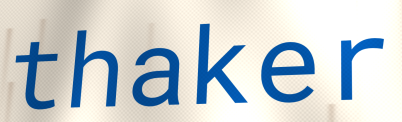
thaker